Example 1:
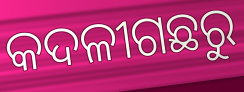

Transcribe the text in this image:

କଦଳୀଗଛରୁ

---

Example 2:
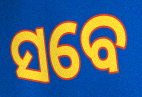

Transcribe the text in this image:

ସବେ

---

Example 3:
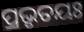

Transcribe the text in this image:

ପ୍ରଭୃତୟଃ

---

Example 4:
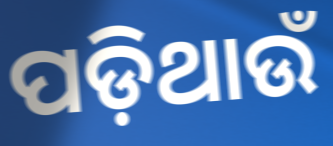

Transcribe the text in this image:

ପଡ଼ିଥାଉଁ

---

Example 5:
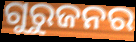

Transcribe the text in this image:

ଗୁରୁଜନର